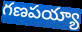
గణపయ్యా